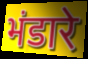
भंडारे